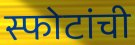
स्फोटांची